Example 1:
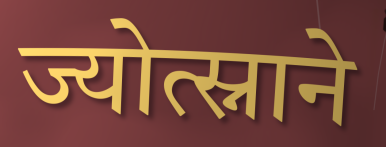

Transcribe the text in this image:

ज्योत्स्नाने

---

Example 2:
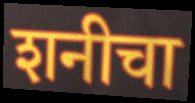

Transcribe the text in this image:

शनीचा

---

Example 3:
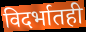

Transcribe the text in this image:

विदर्भातही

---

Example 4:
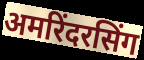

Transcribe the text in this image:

अमरिंदरसिंग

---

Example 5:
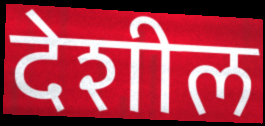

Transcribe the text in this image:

देशील